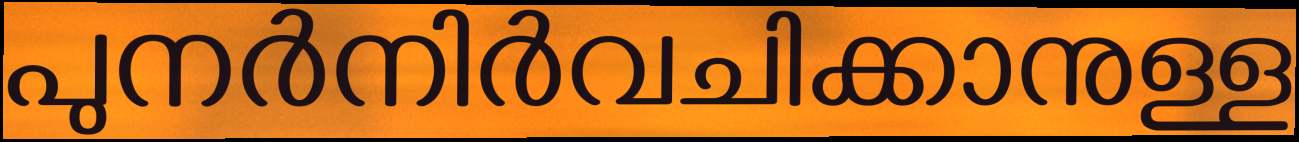
പുനർനിർവചിക്കാനുള്ള